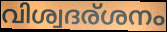
വിശ്വദര്ശനം